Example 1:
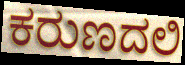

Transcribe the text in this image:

ಕರುಣದಲಿ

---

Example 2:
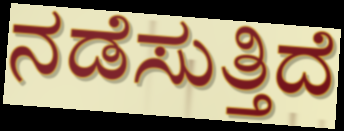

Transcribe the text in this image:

ನಡೆಸುತ್ತಿದೆ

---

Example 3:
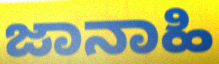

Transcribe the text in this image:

ಜಾನಾಹಿ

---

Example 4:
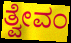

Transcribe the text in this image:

ತ್ವೇವಂ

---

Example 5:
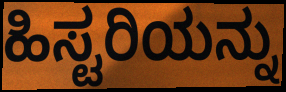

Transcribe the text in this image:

ಹಿಸ್ಟರಿಯನ್ನು